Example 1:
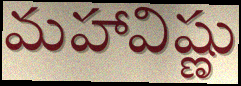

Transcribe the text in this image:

మహావిష్ణు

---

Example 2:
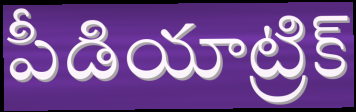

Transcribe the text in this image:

పీడియాట్రిక్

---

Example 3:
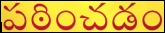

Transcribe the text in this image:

పఠించడం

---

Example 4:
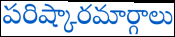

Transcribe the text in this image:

పరిష్కారమార్గాలు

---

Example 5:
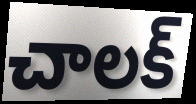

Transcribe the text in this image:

చాలక్